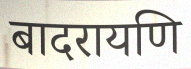
बादरायणि